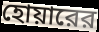
হোয়ারের